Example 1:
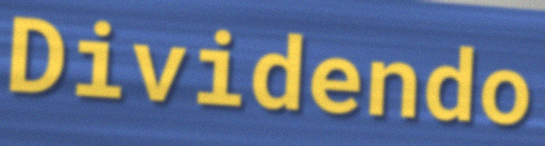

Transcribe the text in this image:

Dividendo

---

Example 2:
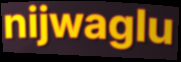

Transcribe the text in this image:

nijwaglu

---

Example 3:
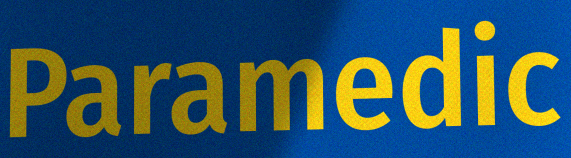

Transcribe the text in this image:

Paramedic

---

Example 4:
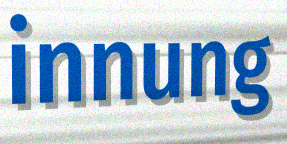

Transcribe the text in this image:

innung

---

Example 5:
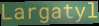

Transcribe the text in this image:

Largatyl